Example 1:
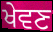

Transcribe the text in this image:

ਖੇਵਣ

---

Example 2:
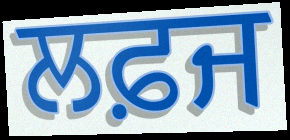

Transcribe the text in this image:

ਲਫ਼ਜ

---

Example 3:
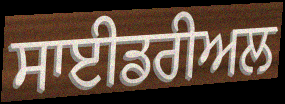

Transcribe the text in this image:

ਸਾਈਡਰੀਅਲ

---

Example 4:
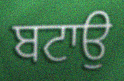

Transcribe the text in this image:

ਬਟਾਉ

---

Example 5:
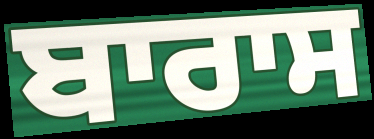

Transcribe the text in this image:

ਬਾਰਾਸ